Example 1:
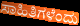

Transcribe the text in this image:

ಸಾಹಿತಿಗಳೆಂದು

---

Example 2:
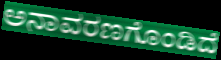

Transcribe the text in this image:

ಅನಾವರಣಗೊಂಡಿದೆ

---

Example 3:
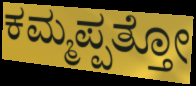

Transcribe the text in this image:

ಕಮ್ಮಪ್ಪತ್ತೋ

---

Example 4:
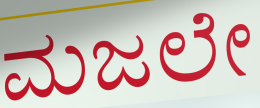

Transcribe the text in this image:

ಮಜಲೇ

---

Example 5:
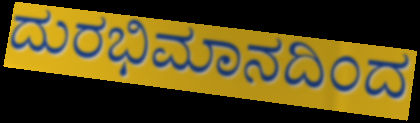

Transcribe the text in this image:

ದುರಭಿಮಾನದಿಂದ